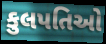
કુલપતિઓ